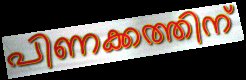
പിണക്കത്തിന്